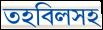
তহবিলসহ